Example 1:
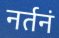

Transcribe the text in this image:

नर्तनं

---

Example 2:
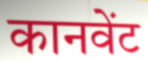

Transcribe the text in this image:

कानवेंट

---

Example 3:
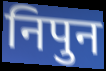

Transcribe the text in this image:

निपुन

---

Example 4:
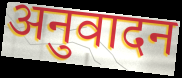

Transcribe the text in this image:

अनुवादन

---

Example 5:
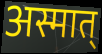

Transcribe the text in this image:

अस्मात्